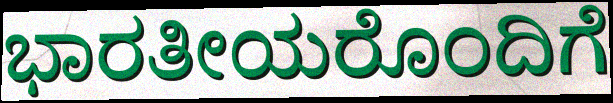
ಭಾರತೀಯರೊಂದಿಗೆ